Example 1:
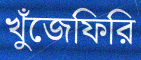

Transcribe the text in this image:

খুঁজেফিরি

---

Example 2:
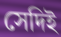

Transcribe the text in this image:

সেদিই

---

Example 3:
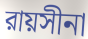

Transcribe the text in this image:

রায়সীনা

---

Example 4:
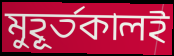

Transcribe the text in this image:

মুহূর্তকালই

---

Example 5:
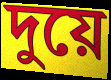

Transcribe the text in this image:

দুয়ে